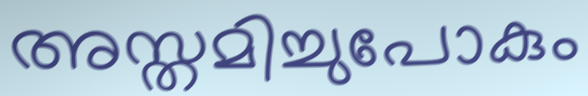
അസ്തമിച്ചുപോകും